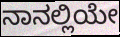
ನಾನಲ್ಲಿಯೇ